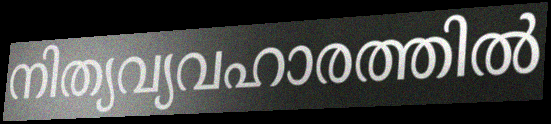
നിത്യവ്യവഹാരത്തിൽ